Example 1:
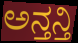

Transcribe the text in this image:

ಅನ್ತನ್ತಿ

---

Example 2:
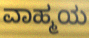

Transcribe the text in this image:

ವಾಹ್ಮಯ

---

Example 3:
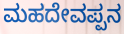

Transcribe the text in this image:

ಮಹದೇವಪ್ಪನ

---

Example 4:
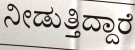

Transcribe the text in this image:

ನೀಡುತ್ತಿದ್ದಾರೆ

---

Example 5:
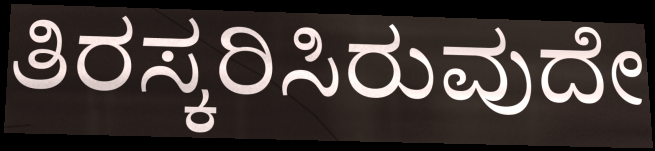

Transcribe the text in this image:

ತಿರಸ್ಕರಿಸಿರುವುದೇ